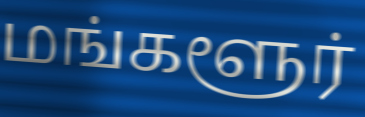
மங்களூர்